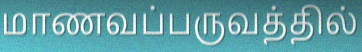
மாணவப்பருவத்தில்